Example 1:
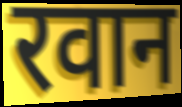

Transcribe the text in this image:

रवान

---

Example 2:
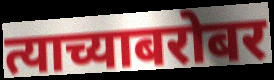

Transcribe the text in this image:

त्याच्याबरोबर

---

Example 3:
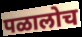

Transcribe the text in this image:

पळालोच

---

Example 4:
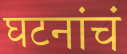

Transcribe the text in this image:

घटनांचं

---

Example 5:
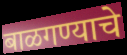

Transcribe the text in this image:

बाळगण्याचे